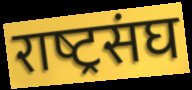
राष्ट्रसंघ